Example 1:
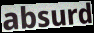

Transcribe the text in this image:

absurd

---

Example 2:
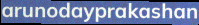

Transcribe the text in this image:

arunodayprakashan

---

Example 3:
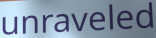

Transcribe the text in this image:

unraveled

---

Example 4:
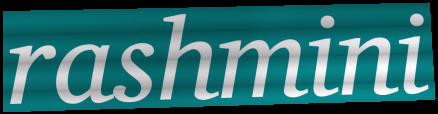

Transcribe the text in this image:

rashmini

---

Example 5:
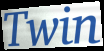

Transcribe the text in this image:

Twin